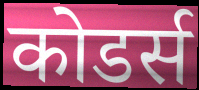
कोडर्स